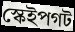
স্কেইপগট